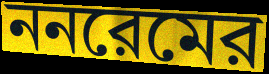
ননরেমের